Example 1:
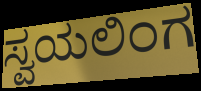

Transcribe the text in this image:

ಸ್ವಯಲಿಂಗ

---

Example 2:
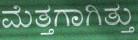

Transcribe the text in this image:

ಮೆತ್ತಗಾಗಿತ್ತು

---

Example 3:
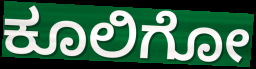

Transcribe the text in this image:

ಕೂಲಿಗೋ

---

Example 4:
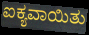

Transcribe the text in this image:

ಐಕ್ಯವಾಯಿತು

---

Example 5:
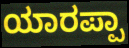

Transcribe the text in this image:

ಯಾರಪ್ಪಾ